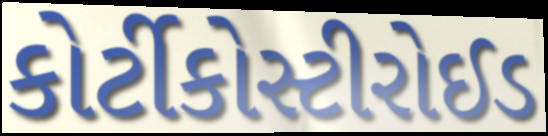
કોર્ટીકોસ્ટીરોઈડ